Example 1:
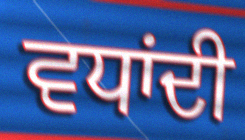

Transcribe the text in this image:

ਵਧਾਂਦੀ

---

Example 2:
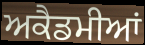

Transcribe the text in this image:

ਅਕੈਡਮੀਆਂ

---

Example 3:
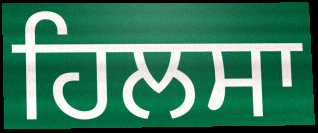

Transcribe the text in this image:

ਹਿਲਸਾ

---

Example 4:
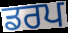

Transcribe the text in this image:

ਡਰਪ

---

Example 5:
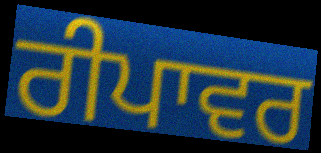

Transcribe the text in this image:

ਰੀਪਾਵਰ